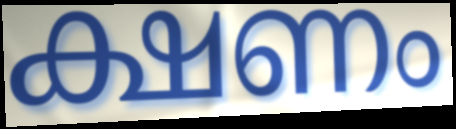
ക്ഷണം